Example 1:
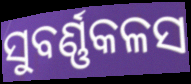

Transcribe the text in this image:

ସୁବର୍ଣ୍ଣକଳସ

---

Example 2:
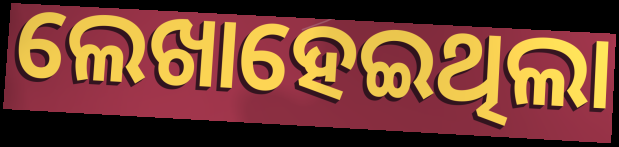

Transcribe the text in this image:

ଲେଖାହେଇଥିଲା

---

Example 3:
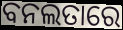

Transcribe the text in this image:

ବନଲତାରେ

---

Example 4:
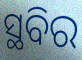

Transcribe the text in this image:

ସ୍ଥବିର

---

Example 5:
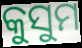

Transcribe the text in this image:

କୁସୁମ